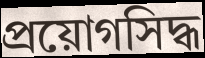
প্রয়োগসিদ্ধ